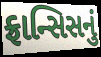
ફ્રાન્સિસનું